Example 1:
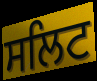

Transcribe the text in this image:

ਸਲਿਟ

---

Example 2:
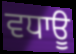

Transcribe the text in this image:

ਵਧਾਊ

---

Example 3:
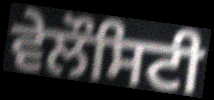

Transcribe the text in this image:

ਵੇਲੌਸਿਟੀ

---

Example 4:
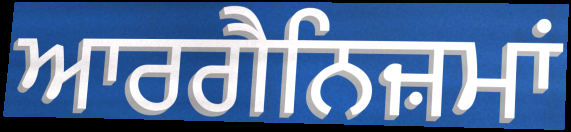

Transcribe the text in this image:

ਆਰਗੈਨਿਜ਼ਮਾਂ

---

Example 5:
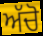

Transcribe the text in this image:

ਅੱਚੋ